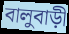
বালুবাড়ী